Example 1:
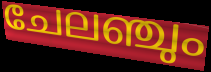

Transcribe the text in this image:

ചേലഞ്ചും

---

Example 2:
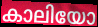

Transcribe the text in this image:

കാലിയോ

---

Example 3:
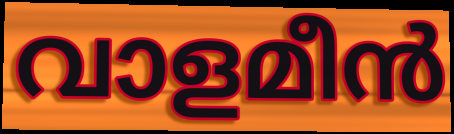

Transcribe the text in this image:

വാളമീൻ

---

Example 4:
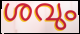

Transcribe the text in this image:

ശവും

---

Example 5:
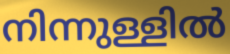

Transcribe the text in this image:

നിന്നുള്ളിൽ